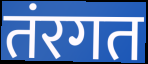
तंरगत